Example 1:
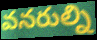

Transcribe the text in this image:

వనరుల్ని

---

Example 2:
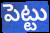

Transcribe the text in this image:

పెట్టు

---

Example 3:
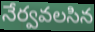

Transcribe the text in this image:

నేర్వవలసిన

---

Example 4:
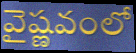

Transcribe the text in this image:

వైష్ణవంలో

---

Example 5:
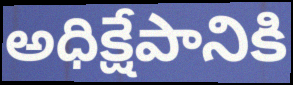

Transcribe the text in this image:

అధిక్షేపానికి